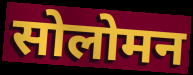
सोलोमन